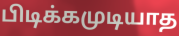
பிடிக்கமுடியாத